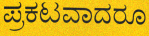
ಪ್ರಕಟವಾದರೂ